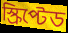
স্ক্রিপ্টেড